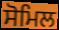
ਸੋਮਿਲ